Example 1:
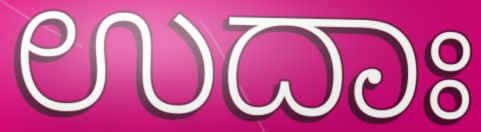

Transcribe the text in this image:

ಉದಾಃ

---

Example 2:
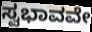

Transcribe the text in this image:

ಸ್ವಭಾವವೇ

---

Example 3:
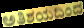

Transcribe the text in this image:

ಅತಿಶಯದಿಂದ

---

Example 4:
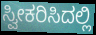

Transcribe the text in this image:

ಸ್ವೀಕರಿಸಿದಲ್ಲಿ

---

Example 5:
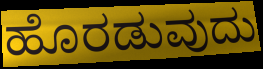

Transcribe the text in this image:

ಹೊರಡುವುದು